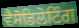
ਵੈਸੋਡਿਲੇਟਿੰਗ